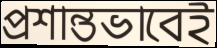
প্রশান্তভাবেই